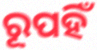
ରୂପହିଁ